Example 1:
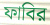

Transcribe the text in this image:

ফাবির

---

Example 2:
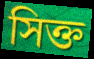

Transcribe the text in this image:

সিক্ত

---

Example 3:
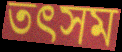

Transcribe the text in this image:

তৎসম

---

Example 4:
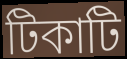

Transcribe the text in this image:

টিকাটি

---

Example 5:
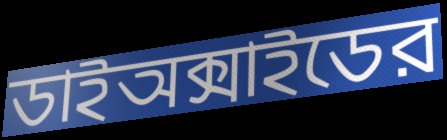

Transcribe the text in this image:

ডাইঅক্সাইডের